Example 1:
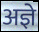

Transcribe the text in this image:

अज्ञे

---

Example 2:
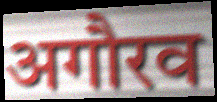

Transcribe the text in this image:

अगौरव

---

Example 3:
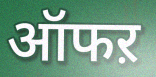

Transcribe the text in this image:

ऑफऱ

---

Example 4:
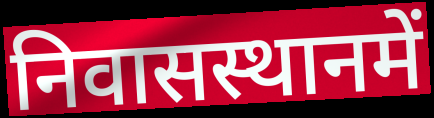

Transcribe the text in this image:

निवासस्थानमें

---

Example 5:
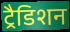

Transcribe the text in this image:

ट्रैडिशन